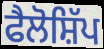
ਫੈਲੋਸ਼ਿੱਪ